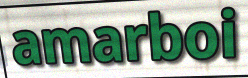
amarboi